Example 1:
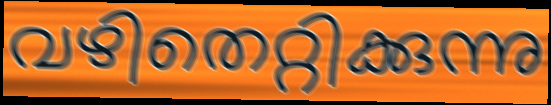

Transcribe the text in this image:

വഴിതെറ്റിക്കുന്നു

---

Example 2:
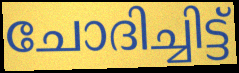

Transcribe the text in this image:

ചോദിച്ചിട്ട്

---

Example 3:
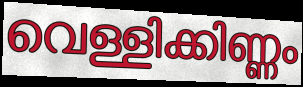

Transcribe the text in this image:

വെള്ളിക്കിണ്ണം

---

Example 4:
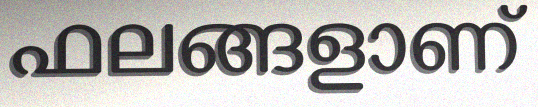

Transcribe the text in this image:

ഫലങ്ങളാണ്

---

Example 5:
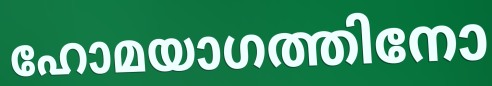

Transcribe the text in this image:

ഹോമയാഗത്തിനോ